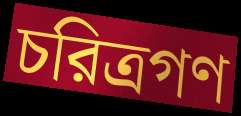
চরিত্রগণ